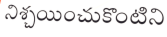
నిశ్చయించుకొంటిని